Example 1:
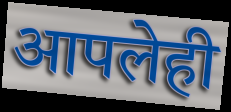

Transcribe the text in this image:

आपलेही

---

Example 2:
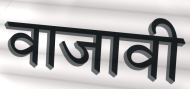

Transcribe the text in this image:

वाजावी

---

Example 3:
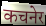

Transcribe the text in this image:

कचनेर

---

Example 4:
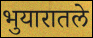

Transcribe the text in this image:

भुयारातले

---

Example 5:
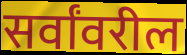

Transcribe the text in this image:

सर्वांवरील